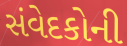
સંવેદકોની